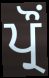
ਪ੍ਰੌਂ